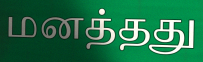
மனத்தது